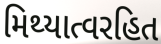
મિથ્યાત્વરહિત